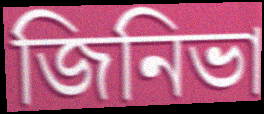
জিনিভা